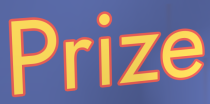
Prize